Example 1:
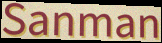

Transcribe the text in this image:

Sanman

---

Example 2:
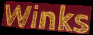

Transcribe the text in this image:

Winks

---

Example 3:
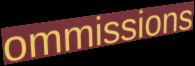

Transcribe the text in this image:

ommissions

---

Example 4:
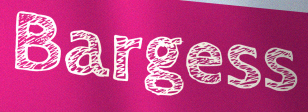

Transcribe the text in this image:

Bargess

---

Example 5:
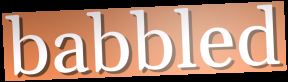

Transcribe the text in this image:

babbled